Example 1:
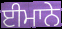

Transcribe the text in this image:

ਈਮਾਨੇ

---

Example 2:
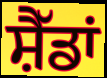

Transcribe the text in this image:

ਸ਼ੈੱਡਾਂ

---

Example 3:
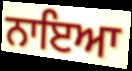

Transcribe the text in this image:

ਨਾਇਆ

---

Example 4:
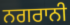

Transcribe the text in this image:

ਨਗਰਾਨੀ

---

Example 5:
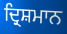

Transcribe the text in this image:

ਦ੍ਰਿਸ਼ਮਾਨ